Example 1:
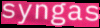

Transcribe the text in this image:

syngas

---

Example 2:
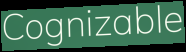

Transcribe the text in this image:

Cognizable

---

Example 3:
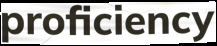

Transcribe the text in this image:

proficiency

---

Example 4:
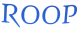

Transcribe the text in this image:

ROOP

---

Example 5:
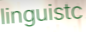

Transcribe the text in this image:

linguistc